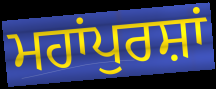
ਮਹਾਂਪੁਰਸ਼ਾਂ